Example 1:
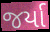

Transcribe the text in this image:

જર્યા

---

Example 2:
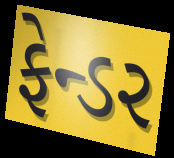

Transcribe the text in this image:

ફેન્ડર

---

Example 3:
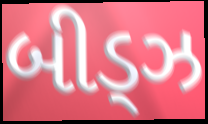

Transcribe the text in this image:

બીડ્ઝ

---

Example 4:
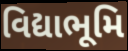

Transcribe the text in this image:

વિદ્યાભૂમિ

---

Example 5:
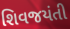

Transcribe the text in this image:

શિવજયંતી